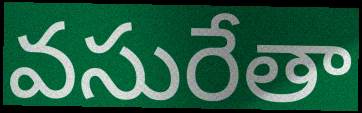
వసురేతా